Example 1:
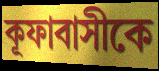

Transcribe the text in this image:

কূফাবাসীকে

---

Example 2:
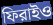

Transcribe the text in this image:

ফিরাইও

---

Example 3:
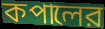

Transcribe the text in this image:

কপালের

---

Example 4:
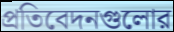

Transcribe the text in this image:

প্রতিবেদনগুলোর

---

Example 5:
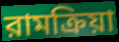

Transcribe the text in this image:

রামক্রিয়া